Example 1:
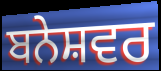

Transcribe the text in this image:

ਬਨੇਸ਼ਵਰ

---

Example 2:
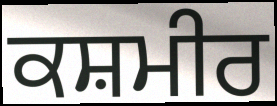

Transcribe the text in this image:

ਕਸ਼ਮੀਰ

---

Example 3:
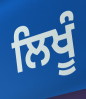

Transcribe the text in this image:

ਲਿਖੂੰ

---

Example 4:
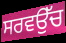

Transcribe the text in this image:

ਸਰਵਉੱਚ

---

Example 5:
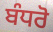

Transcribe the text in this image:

ਬੰਧਰੋ